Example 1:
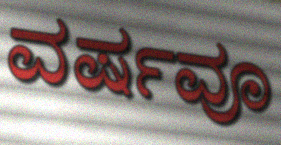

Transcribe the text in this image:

ವರ್ಷವೂ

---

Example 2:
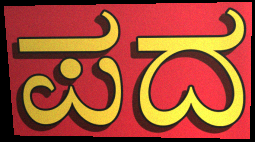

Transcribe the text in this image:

ಪದ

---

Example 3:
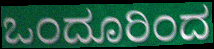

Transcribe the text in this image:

ಒಂದೂರಿಂದ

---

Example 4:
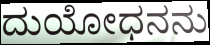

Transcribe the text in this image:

ದುಯೋಧನನು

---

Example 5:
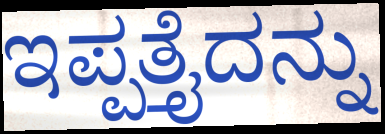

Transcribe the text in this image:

ಇಪ್ಪತ್ತೈದನ್ನು